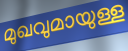
മുഖവുമായുള്ള